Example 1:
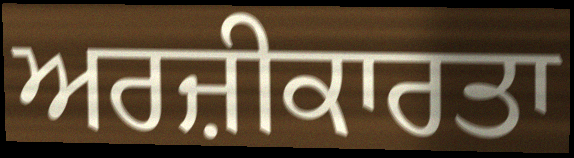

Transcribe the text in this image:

ਅਰਜ਼ੀਕਾਰਤਾ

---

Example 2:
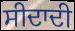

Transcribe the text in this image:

ਸੀਦਾਦੀ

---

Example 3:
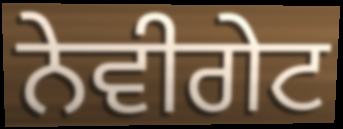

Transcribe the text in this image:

ਨੇਵੀਗੇਟ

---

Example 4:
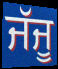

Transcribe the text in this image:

ਜੱਜੂ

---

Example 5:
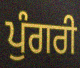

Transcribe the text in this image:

ਪੁੰਗਰੀ